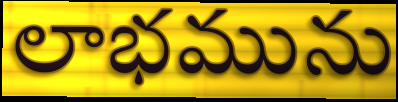
లాభమును